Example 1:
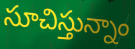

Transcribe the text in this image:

సూచిస్తున్నాం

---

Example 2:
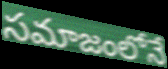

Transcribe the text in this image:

సమాజంలోనే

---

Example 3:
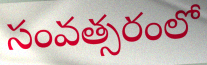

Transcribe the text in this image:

సంవత్సరంలో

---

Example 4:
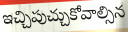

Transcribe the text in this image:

ఇచ్చిపుచ్చుకోవాల్సిన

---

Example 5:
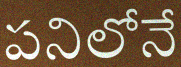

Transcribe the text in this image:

పనిలోనే